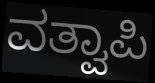
ವತ್ವಾಪಿ